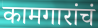
कामगारांचं